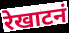
रेखाटनं